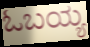
ಓಬಯ್ಯ